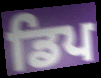
ਡਿਪ